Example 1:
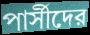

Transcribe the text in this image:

পার্সীদের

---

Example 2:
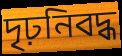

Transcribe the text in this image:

দৃঢ়নিবদ্ধ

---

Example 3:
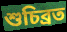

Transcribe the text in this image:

শুচিব্রত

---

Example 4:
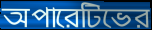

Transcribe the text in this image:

অপারেটিভের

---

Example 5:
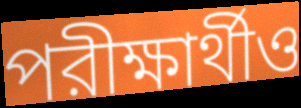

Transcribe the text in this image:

পরীক্ষার্থীও